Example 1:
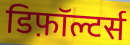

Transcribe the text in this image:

डिफ़ॉल्टर्स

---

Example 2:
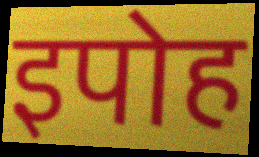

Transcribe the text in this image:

इपोह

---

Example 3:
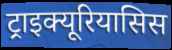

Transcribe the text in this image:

ट्राइक्यूरियासिस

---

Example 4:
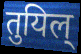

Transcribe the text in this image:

तुयिल्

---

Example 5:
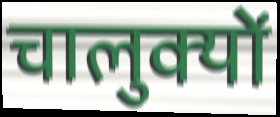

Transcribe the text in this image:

चालुक्यों